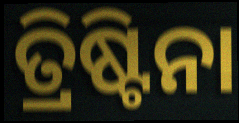
ତ୍ରିଷ୍ଟିନା